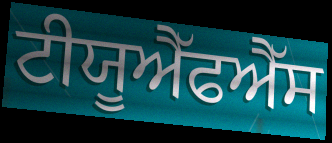
ਟੀਯੂਐੱਫਐੱਸ